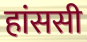
हांससी